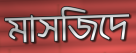
মাসজিদে